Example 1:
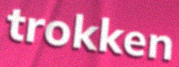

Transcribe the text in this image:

trokken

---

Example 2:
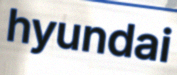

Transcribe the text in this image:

hyundai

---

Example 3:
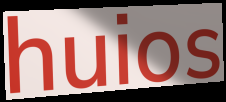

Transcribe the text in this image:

huios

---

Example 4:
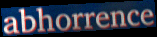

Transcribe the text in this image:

abhorrence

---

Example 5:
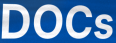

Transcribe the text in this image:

DOCs